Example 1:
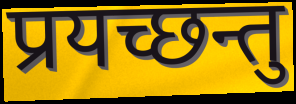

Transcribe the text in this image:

प्रयच्छन्तु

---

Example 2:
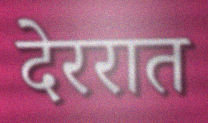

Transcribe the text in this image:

देररात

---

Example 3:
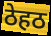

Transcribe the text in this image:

ठेहठ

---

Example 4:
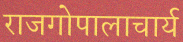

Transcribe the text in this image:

राजगोपालाचार्य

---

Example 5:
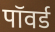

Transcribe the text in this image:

पॉवर्ड